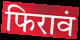
फिरावं